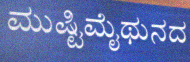
ಮುಷ್ಟಿಮೈಥುನದ